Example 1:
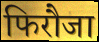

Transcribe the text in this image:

फिरौजा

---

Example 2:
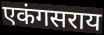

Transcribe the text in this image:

एकंगसराय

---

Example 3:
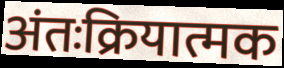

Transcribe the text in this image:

अंतःक्रियात्मक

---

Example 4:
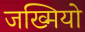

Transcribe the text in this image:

जख्मियो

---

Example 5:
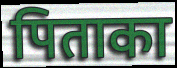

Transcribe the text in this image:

पिताका